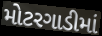
મોટરગાડીમાં